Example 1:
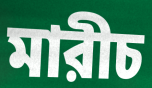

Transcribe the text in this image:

মারীচ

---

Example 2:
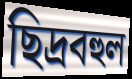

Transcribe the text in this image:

ছিদ্রবহুল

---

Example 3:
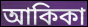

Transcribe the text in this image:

আকিকা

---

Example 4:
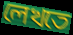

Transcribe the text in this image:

লেখতে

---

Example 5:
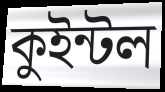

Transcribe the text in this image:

কুইন্টল